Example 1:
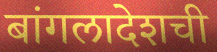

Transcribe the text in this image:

बांगलादेशची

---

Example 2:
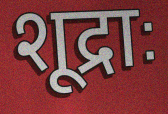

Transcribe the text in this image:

शूद्राः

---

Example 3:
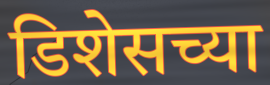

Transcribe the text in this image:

डिशेसच्या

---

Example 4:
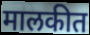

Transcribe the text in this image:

मालकीत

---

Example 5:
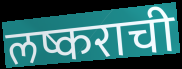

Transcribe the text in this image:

लष्कराची